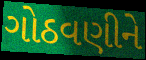
ગોઠવણીને